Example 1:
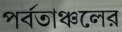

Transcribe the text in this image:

পর্বতাঞ্চলের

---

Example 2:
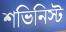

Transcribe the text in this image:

শভিনিস্ট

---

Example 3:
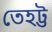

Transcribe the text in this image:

তেহট্ট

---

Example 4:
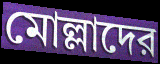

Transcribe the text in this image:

মোল্লাদের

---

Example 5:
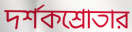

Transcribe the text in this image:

দর্শকশ্রোতার